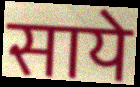
साये